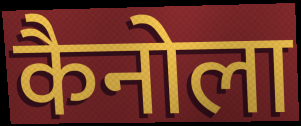
कैनोला